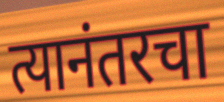
त्यानंतरचा